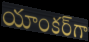
యాంకర్‌గా